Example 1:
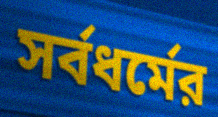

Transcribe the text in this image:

সর্বধর্মের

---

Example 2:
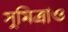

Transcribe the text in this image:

সুমিত্রাও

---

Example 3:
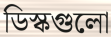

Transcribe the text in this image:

ডিস্কগুলো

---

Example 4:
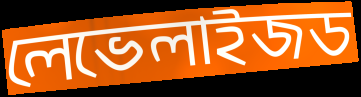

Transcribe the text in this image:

লেভেলাইজড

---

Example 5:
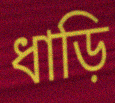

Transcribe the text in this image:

ধাড়ি